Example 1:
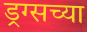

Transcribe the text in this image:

ड्रग्सच्या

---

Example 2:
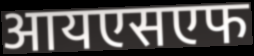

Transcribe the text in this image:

आयएसएफ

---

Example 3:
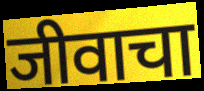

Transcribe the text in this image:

जीवाचा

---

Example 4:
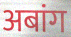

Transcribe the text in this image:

अबांग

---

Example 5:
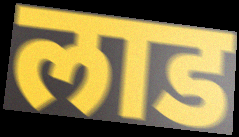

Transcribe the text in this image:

लाड